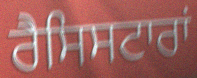
ਰੈਸਿਸਟਾਰਾਂ